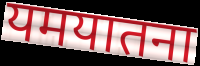
यमयातना